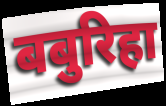
बबुरिहा